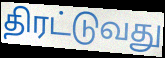
திரட்டுவது